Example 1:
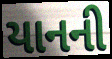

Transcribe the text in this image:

યાનની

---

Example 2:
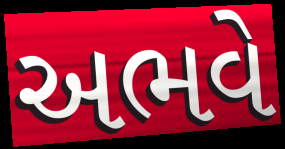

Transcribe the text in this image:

અભવે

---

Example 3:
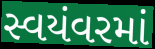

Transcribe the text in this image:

સ્વયંવરમાં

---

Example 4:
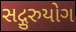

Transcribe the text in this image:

સદ્ગુરુયોગ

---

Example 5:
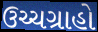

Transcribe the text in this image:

ઉચ્ચગ્રાહો